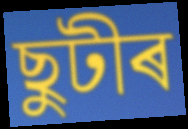
ছুটীৰ